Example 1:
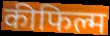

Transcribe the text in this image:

कीफिल्म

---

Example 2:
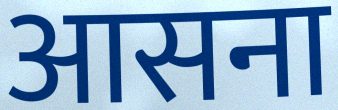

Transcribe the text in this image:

आसना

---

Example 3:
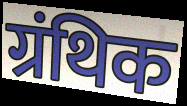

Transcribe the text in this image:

ग्रंथिक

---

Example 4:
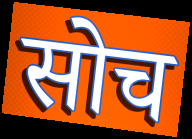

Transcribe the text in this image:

सोच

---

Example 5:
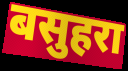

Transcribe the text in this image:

बसुहरा